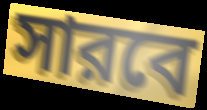
সারবে